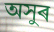
অসুৰ